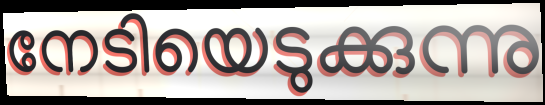
നേടിയെടുക്കുന്നു